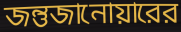
জন্তুজানোয়ারের